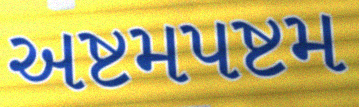
અષ્ટમપષ્ટમ